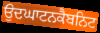
ਉਦਘਾਟਨਕੈਬਨਿਟ